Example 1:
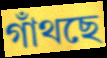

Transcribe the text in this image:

গাঁথছে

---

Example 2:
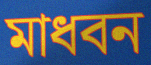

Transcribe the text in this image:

মাধবন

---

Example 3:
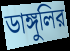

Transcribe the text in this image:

ডাঙ্গুলির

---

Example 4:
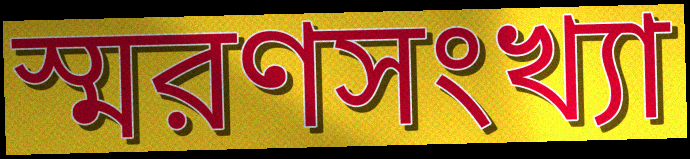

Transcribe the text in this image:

স্মরণসংখ্যা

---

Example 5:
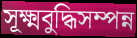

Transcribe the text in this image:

সূক্ষ্মবুদ্ধিসম্পন্ন